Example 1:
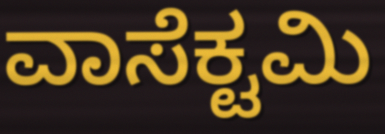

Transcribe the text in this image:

ವಾಸೆಕ್ಟಮಿ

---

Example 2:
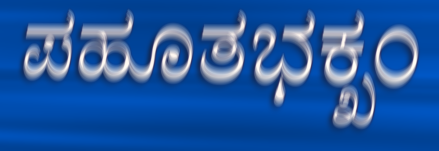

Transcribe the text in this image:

ಪಹೂತಭಕ್ಖಂ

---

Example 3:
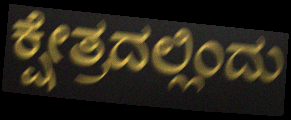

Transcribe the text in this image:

ಕ್ಷೇತ್ರದಲ್ಲಿಂದು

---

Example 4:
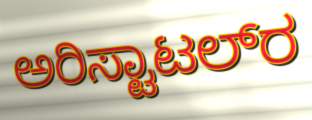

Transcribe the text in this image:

ಅರಿಸ್ಟಾಟಲ್‍ರ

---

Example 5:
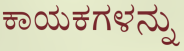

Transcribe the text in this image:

ಕಾಯಕಗಳನ್ನು